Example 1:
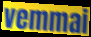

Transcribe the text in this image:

vemmai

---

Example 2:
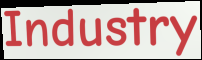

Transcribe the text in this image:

Industry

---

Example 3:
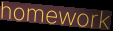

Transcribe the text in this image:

homework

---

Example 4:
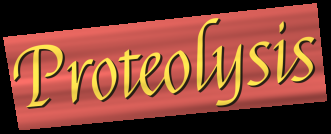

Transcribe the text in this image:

Proteolysis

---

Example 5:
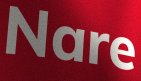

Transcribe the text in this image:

Nare